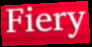
Fiery